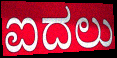
ಐದಲು